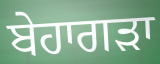
ਬੇਹਾਗੜਾ